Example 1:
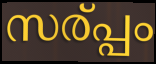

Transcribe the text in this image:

സര്പ്പം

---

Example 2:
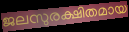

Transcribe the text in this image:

ജലസുരക്ഷിതമായ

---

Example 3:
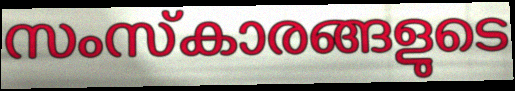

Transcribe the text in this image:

സംസ്‌കാരങ്ങളുടെ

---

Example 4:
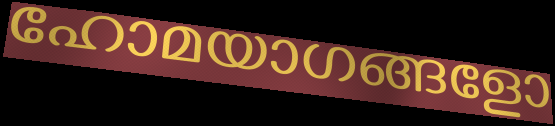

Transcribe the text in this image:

ഹോമയാഗങ്ങളോ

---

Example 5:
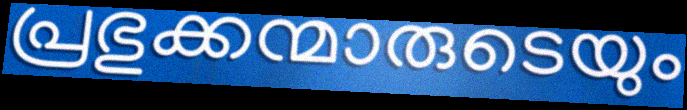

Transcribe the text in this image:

പ്രഭുക്കന്മാരുടെയും